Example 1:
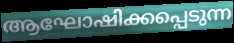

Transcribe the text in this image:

ആഘോഷിക്കപ്പെടുന്ന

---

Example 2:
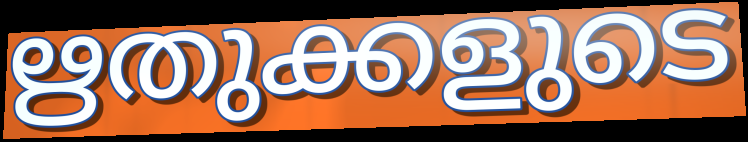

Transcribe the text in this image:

ഋതുക്കളുടെ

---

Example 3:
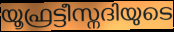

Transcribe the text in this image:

യൂഫ്രട്ടീസ്നദിയുടെ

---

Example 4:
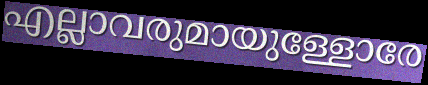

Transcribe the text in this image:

എല്ലാവരുമായുള്ളോരേ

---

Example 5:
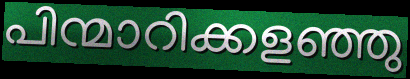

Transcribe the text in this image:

പിന്മാറിക്കളഞ്ഞു